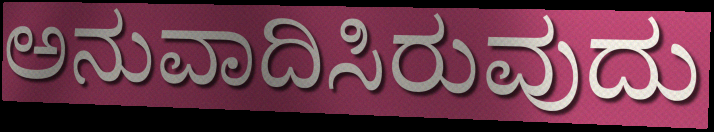
ಅನುವಾದಿಸಿರುವುದು